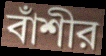
বাঁশীর